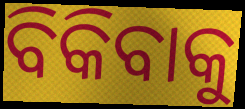
ବିକିବାକୁ